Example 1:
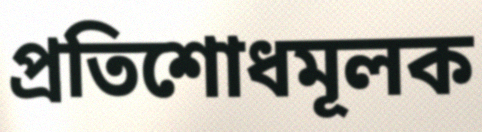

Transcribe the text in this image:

প্রতিশোধমূলক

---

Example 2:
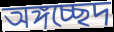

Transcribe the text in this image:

অঙ্গচ্ছেদ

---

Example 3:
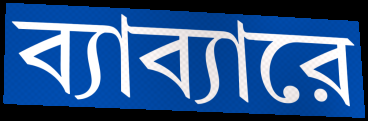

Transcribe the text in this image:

ব্যাব্যারে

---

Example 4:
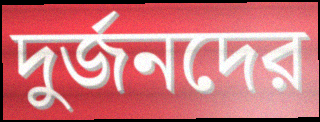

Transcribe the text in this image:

দুর্জনদের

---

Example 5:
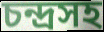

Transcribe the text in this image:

চন্দ্রসহ